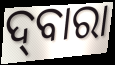
ଦ୍‌ବାରା